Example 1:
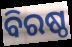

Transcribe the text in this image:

ବିରଷ୍ଠ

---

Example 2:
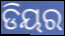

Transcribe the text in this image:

ଡିୟର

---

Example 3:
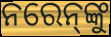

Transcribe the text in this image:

ନରେନ୍‍ଙ୍କୁ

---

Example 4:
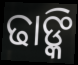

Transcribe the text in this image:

ଢାଙ୍କି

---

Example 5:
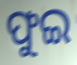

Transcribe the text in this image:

ଫୁଇ